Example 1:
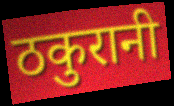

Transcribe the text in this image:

ठकुरानी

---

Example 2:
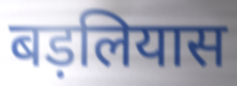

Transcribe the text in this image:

बड़लियास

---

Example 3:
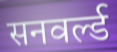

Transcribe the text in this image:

सनवर्ल्ड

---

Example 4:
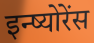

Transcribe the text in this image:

इन्ष्योरेंस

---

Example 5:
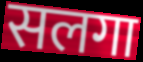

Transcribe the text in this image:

सलगा